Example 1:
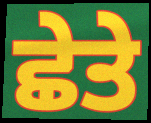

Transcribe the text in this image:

ਛੇਤੇ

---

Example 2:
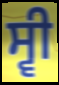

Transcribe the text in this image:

ਸ੍ਵੀ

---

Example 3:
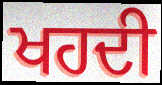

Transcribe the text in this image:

ਖਹਦੀ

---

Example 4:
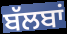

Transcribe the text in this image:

ਬੱਲਬਾਂ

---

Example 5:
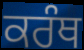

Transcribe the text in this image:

ਕਰੰਥ